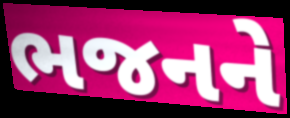
ભજનને